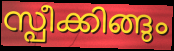
സ്പീക്കിങ്ങും